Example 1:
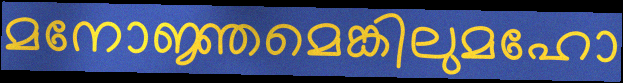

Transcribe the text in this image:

മനോജ്ഞമെങ്കിലുമഹോ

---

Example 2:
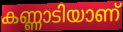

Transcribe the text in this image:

കണ്ണാടിയാണ്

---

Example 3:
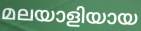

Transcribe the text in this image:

മലയാളിയായ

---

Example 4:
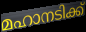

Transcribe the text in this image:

മഹാനടിക്ക്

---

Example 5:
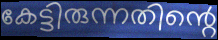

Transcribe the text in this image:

കേട്ടിരുന്നതിന്റെ